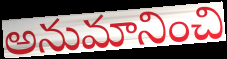
అనుమానించి